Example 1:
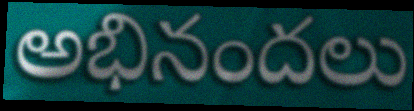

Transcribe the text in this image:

అభినందలు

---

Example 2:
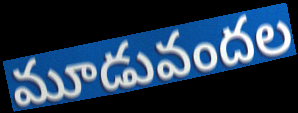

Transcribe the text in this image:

మూడువందల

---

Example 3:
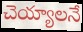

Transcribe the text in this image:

చెయ్యాలనే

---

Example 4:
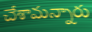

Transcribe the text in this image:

చేశామన్నారు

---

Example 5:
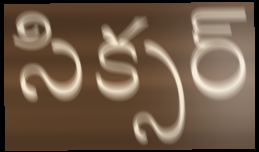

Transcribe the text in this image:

సిక్సర్